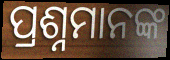
ପ୍ରଶ୍ନମାନଙ୍କ